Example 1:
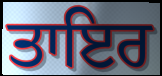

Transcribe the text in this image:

ਤਾਇਰ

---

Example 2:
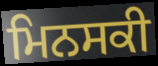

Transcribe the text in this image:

ਮਿਨਸਕੀ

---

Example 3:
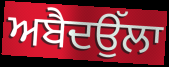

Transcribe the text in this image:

ਅਬੈਦਉੱਲਾ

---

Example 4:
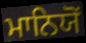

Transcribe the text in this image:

ਮਾਨਿਯੋਂ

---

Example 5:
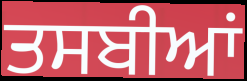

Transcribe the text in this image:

ਤਸਬੀਆਂ